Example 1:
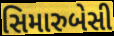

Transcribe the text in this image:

સિમારુબેસી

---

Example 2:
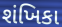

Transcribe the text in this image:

શંખિકા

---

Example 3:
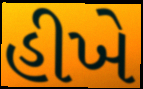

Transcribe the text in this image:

હીખે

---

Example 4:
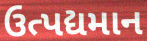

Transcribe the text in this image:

ઉત્પદ્યમાન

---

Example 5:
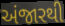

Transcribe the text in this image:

અંજારથી